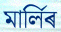
মাৰ্লিৰ